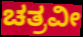
ಚತ್ರವೀ